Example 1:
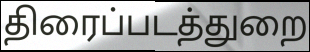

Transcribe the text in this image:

திரைப்படத்துறை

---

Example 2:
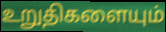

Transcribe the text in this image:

உறுதிகளையும்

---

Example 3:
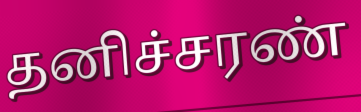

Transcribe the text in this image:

தனிச்சரண்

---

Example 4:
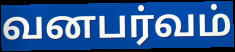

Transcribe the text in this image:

வனபர்வம்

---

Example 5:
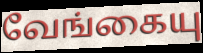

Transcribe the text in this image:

வேங்கையு